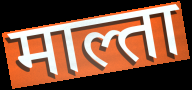
माल्ता